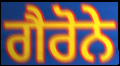
ਗੈਰੋਨੇ